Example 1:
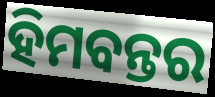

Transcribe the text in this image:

ହିମବନ୍ତର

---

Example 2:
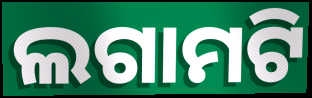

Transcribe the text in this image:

ଲଗାମଟି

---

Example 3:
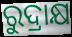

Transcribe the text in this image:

ରୁଦ୍ରାକ୍ଷ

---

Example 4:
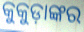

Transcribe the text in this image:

କୁକୁଡ଼ାଙ୍କର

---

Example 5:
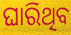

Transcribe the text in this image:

ଘାରିଥିବ